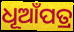
ଧୂଆଁପତ୍ର